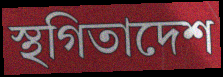
স্থগিতাদেশ